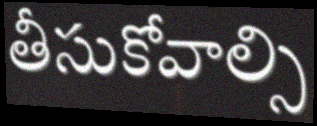
తీసుకోవాల్సి